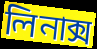
লিনাক্স